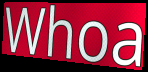
Whoa